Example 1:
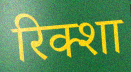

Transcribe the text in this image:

रिक्शा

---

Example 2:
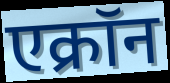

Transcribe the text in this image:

एक्रॉन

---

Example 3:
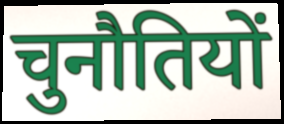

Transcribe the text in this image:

चुनौतियों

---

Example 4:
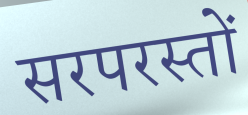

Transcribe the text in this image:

सरपरस्तों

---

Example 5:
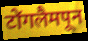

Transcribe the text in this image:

टोंगलैमपून